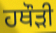
ਹਥੌੜੀ